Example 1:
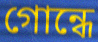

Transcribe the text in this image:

গোন্ধে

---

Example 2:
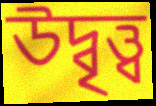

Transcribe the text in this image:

উদ্বৃত্ত্ব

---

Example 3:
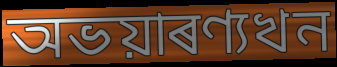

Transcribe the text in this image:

অভয়াৰণ্যখন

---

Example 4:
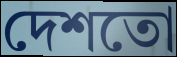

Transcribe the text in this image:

দেশতো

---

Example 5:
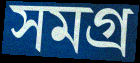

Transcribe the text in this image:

সমগ্ৰ